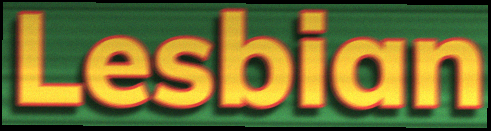
Lesbian